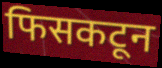
फिसकटून